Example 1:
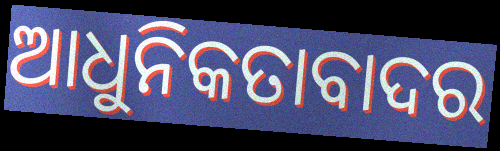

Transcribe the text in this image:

ଆଧୁନିକତାବାଦର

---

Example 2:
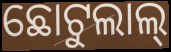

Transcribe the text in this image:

ଛୋଟୁଲାଲ୍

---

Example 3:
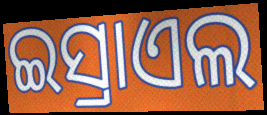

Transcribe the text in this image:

ଇସ୍ରାଏଲ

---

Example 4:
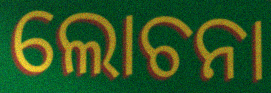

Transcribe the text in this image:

ଲୋଚନା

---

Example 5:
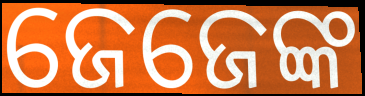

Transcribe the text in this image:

ଜେଜେଙ୍କ